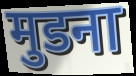
मुडना